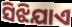
ସିଝିଯାଏ